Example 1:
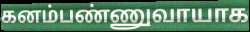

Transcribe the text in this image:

கனம்பண்ணுவாயாக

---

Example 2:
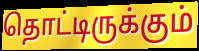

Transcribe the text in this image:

தொட்டிருக்கும்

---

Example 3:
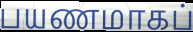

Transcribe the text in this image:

பயணமாகப்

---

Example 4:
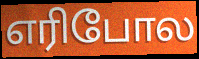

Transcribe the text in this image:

எரிபோல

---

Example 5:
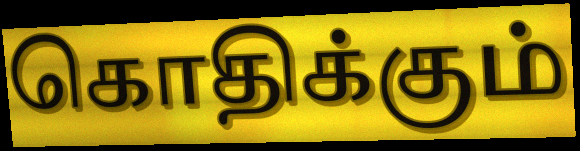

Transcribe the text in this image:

கொதிக்கும்